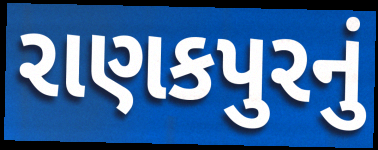
રાણકપુરનું